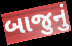
બાજુનું